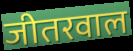
जीतरवाल